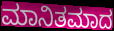
ಮಾನಿತಮಾದ